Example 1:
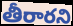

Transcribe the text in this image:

తీరారని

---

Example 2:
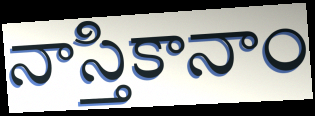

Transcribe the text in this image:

నాస్తికానాం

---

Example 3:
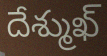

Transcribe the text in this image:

దేశ్ముఖ్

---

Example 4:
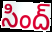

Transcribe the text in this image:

సింద్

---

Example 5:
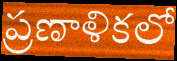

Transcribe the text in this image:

ప్రణాళికలో